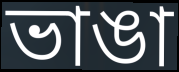
ভাঙা